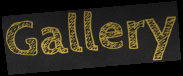
Gallery